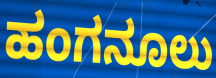
ಹಂಗನೂಲು